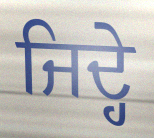
ਜਿਦ੍ਹੇ